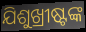
ଯିଶୁଖ୍ରୀଷ୍ଟଙ୍କ